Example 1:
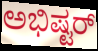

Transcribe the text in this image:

ಅಭಿಷ್ಟರ್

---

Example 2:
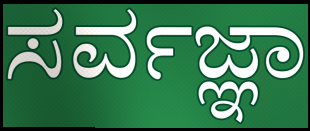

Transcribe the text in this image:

ಸರ್ವಜ್ಞಾ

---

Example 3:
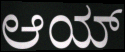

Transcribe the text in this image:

ಆಯ್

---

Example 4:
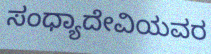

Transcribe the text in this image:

ಸಂಧ್ಯಾದೇವಿಯವರ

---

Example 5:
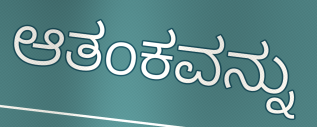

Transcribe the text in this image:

ಆತಂಕವನ್ನು